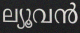
ല്യൂവൻ